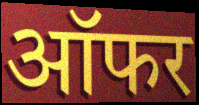
ऑफर